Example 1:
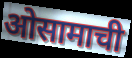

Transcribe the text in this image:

ओसामाची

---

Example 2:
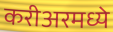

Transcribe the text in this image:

करीअरमध्ये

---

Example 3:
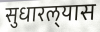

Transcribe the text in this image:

सुधारल्यास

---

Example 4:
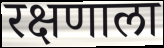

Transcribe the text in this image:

रक्षणाला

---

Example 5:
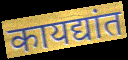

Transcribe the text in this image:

कायद्यांत